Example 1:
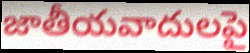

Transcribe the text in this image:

జాతీయవాదులపై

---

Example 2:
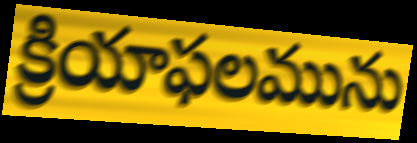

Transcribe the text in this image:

క్రియాఫలమును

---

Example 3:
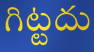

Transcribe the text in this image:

గిట్టదు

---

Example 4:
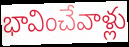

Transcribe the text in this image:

భావించేవాళ్లు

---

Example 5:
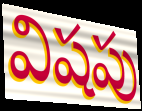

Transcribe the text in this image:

విషపు